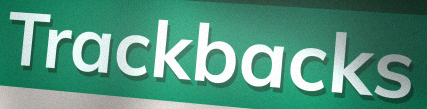
Trackbacks